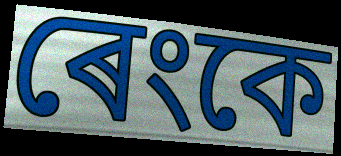
ৰেংকে